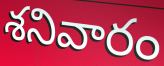
శనివారం